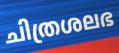
ചിത്രശലഭ